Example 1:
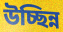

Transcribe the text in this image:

উচ্ছিন্ন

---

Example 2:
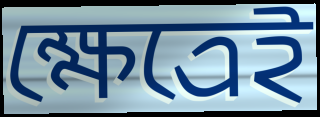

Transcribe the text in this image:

ক্ষেত্রেই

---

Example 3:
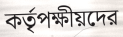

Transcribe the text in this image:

কর্তৃপক্ষীয়দের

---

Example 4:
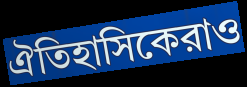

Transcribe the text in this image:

ঐতিহাসিকেরাও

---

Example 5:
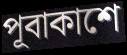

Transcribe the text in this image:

পূবাকাশে